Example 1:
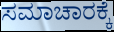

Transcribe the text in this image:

ಸಮಾಚಾರಕ್ಕೆ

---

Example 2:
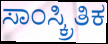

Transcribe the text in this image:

ಸಾಂಸ್ಕ್ರಿತಿಕ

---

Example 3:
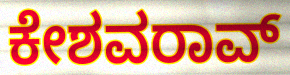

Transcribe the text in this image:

ಕೇಶವರಾವ್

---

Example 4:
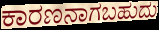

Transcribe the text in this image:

ಕಾರಣನಾಗಬಹುದು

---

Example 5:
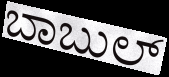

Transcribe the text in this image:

ಬಾಬುಲ್